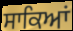
ਸਾਕਿਆਂ